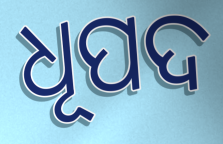
ଧୂପଦ